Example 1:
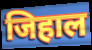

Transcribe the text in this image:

जिहाल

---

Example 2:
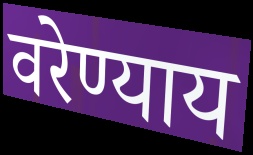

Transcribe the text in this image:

वरेण्याय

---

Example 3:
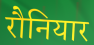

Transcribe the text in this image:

रौनियार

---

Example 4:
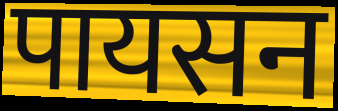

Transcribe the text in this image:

पायसन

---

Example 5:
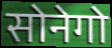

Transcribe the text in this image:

सोनेगो